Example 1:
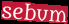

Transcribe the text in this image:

sebum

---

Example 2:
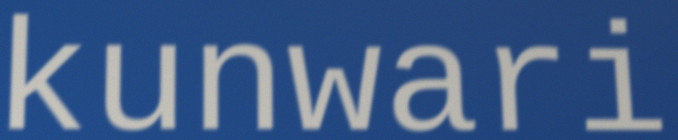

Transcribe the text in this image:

kunwari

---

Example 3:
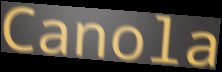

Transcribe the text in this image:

Canola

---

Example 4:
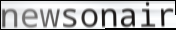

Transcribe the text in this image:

newsonair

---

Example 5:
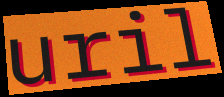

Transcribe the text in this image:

uril